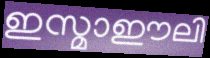
ഇസ്മാഈലി